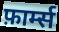
फ़ार्म्स